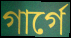
গাৰ্গে